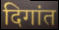
दिगांत